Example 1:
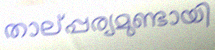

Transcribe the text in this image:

താല്പ്പര്യമുണ്ടായി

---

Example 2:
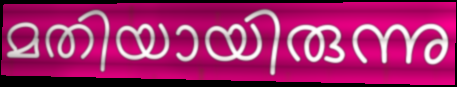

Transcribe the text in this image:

മതിയായിരുന്നു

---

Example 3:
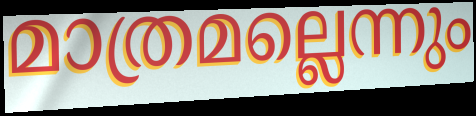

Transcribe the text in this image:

മാത്രമല്ലെന്നും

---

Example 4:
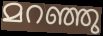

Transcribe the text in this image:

മറഞ്ഞു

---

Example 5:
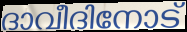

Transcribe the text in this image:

ദാവീദിനോട്